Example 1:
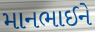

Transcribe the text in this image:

માનભાઈને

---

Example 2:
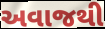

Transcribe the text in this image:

અવાજથી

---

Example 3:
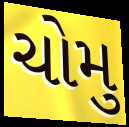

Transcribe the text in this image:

ચોમુ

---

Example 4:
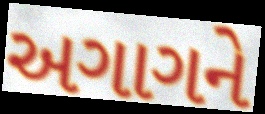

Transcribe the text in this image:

અગાગને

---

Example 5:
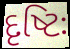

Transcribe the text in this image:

દૃષ્ટિઃ